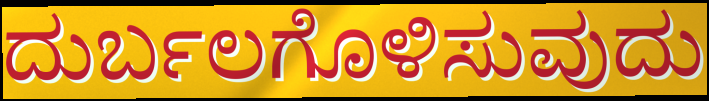
ದುರ್ಬಲಗೊಳಿಸುವುದು